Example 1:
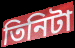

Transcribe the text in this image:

তিনিটা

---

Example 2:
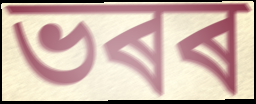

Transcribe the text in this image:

ভৰৰ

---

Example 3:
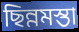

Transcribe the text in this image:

ছিন্নমস্তা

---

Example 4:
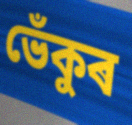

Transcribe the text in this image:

ভেঁকুৰ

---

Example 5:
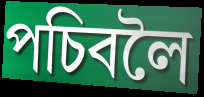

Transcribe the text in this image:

পচিবলৈ